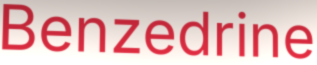
Benzedrine